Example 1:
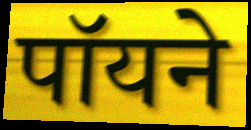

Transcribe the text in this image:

पॉयने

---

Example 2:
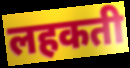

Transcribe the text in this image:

लहकती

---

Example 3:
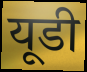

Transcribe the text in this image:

यूडी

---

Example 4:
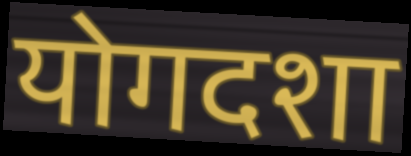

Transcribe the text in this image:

योगदशा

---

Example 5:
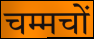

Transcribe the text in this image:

चम्मचों